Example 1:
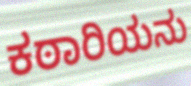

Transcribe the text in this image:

ಕಠಾರಿಯನು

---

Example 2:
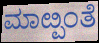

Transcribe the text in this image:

ಮಾೞ್ಪಂತೆ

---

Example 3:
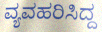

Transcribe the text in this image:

ವ್ಯವಹರಿಸಿದ್ದ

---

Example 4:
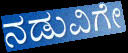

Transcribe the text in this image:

ನಡುವಿಗೇ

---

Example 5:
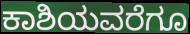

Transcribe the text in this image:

ಕಾಶಿಯವರೆಗೂ